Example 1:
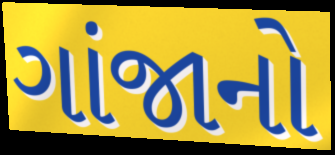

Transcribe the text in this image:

ગાંજાનો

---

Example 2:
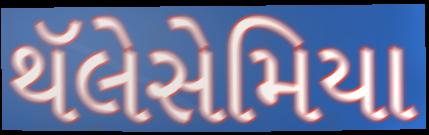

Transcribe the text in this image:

થૅલેસેમિયા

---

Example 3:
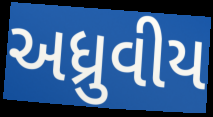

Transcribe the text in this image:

અધ્રુવીય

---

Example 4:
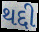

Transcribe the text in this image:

થદ્દી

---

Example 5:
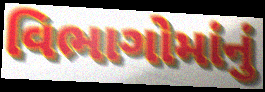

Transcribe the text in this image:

વિભાગોમાંનું